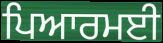
ਪਿਆਰਮਈ